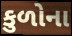
કુળોના